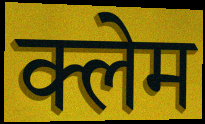
क्लेम